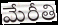
మేరీతి